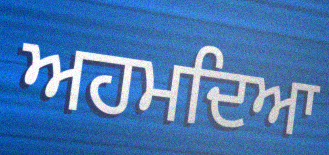
ਅਹਮਦਿਆ